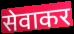
सेवाकर